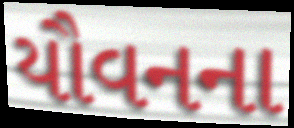
યૌવનના